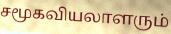
சமூகவியலாளரும்